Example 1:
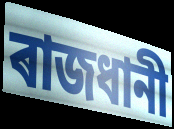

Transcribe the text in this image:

ৰাজধানী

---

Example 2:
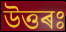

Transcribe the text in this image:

উত্তৰঃ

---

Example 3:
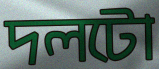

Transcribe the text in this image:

দলটো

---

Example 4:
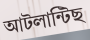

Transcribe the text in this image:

আটলান্টিছ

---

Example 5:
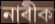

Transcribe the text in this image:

নাৰীক